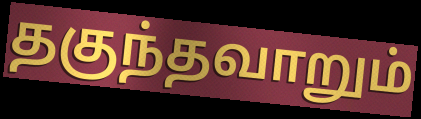
தகுந்தவாறும்